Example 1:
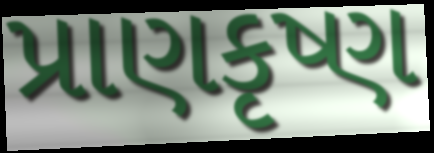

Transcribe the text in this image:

પ્રાણકૃષ્ણ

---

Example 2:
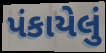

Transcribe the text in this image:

પંકાયેલું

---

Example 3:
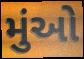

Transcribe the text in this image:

મુંઓ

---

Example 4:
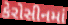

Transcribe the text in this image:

કેરોસીનમાં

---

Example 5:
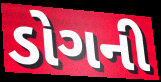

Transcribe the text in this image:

ડોગની